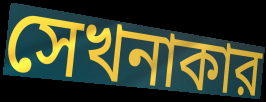
সেখনাকার